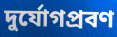
দুর্যোগপ্রবণ